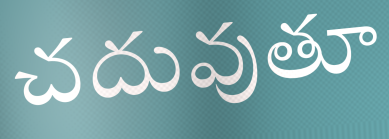
చదువుతూ